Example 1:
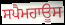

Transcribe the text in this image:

ਸਪੈਮਹਾਊਸ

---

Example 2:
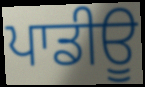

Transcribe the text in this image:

ਪਾਡੀਊ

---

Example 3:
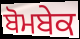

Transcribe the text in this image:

ਬੋਮਬੇਕ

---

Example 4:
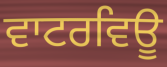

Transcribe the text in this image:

ਵਾਟਰਵਿਊ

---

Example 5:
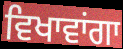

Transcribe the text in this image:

ਵਿਖਾਵਾਂਗਾ